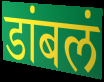
डांबलं